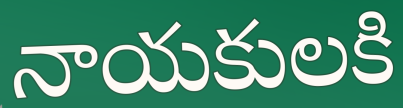
నాయకులకి